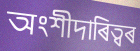
অংশীদাৰিত্বৰ